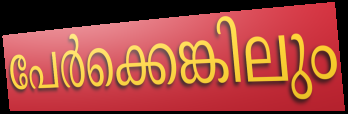
പേർക്കെങ്കിലും